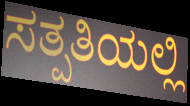
ಸತ್ಪತಿಯಲ್ಲಿ